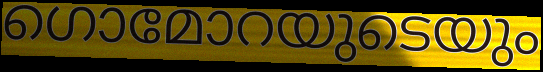
ഗൊമോറയുടെയും